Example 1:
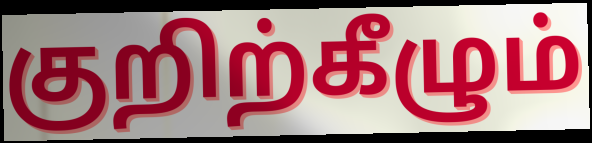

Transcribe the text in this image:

குறிற்கீழும்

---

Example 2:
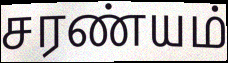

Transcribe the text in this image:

சரண்யம்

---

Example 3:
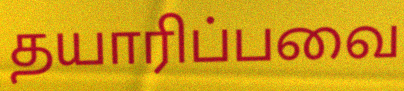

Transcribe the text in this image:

தயாரிப்பவை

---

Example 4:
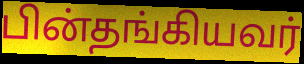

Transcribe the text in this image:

பின்தங்கியவர்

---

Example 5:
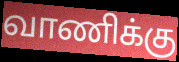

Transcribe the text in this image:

வாணிக்கு